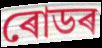
ৰোডৰ